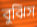
বুঝিস